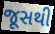
જૂસથી